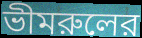
ভীমরুলের